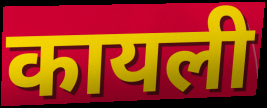
कायली